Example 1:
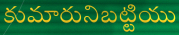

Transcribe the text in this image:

కుమారునిబట్టియు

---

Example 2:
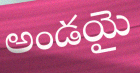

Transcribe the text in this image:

అండయై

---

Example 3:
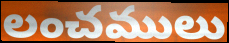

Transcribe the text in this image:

లంచములు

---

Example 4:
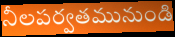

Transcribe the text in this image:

నీలపర్వతమునుండి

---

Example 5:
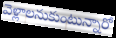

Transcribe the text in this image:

వెళ్లాలనుకుంటున్నారో